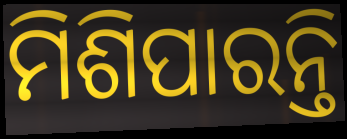
ମିଶିପାରନ୍ତି